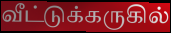
வீட்டுக்கருகில்